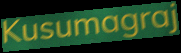
Kusumagraj